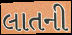
લાતની